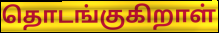
தொடங்குகிறாள்